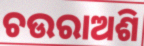
ଚଉରାଅଶି